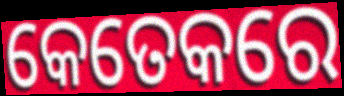
କେତେକରେ